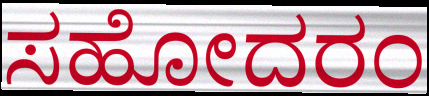
ಸಹೋದರಂ